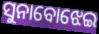
ସୁନାବୋଝେଇ